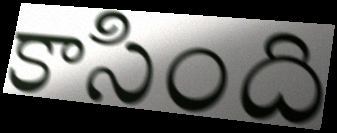
కాసింది